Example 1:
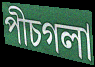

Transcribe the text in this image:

পীচগলা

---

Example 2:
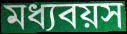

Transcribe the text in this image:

মধ্যবয়স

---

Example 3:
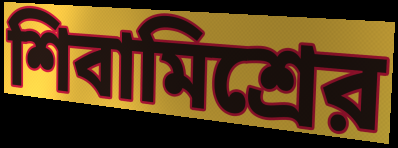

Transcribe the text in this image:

শিবামিশ্রের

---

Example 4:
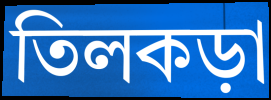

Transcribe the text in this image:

তিলকড়া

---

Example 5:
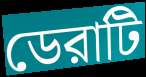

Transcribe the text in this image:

ডেরাটি